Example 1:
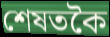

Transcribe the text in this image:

শেষতকৈ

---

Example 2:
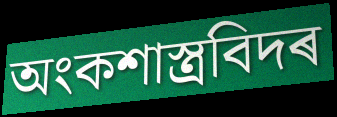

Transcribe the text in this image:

অংকশাস্ত্ৰবিদৰ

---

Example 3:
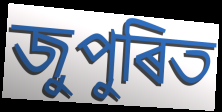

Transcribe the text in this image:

জুপুৰিত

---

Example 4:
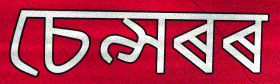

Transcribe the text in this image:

চেন্সৰৰ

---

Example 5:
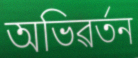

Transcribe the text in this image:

অভিৱৰ্তন